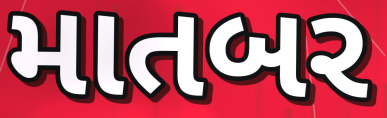
માતબર